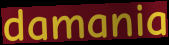
damania